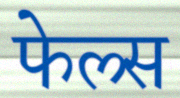
फेल्स